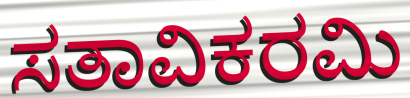
ಸತಾವಿಕರಮಿ